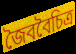
জৈববৈচিত্র